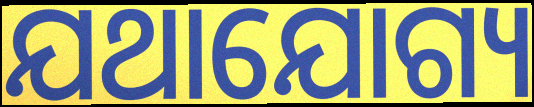
ଯଥାଯୋଗ୍ୟ